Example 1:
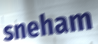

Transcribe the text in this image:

sneham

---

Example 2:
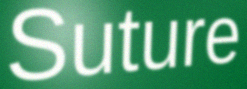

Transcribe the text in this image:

Suture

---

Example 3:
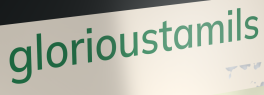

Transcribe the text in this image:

glorioustamils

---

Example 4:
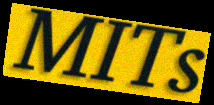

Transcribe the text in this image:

MITs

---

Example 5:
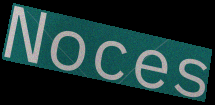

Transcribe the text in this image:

Noces